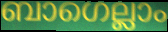
ബാഗെല്ലാം